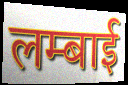
लम्बाई